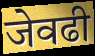
जेवढी